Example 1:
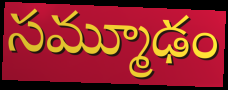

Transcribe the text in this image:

సమ్మూఢం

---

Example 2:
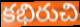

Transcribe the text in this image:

కభిరుచి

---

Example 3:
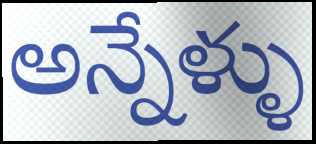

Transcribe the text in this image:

అన్నేళ్ళు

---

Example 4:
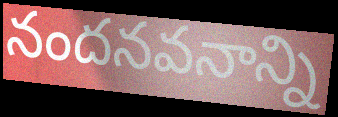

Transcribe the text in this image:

నందనవనాన్ని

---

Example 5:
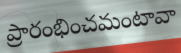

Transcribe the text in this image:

ప్రారంభించమంటావా